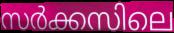
സർക്കസിലെ